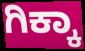
ಗಿಕ್ಕಾ